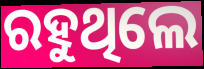
ରହୁଥିଲେ